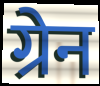
ग्रेन